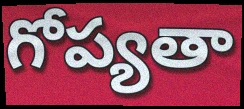
గోప్యతా